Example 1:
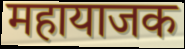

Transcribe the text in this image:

महायाजक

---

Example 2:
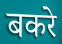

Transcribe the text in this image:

बकरे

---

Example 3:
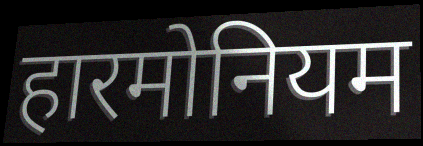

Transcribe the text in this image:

हारमोनियम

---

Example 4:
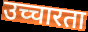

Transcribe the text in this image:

उच्चारता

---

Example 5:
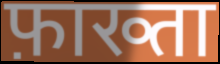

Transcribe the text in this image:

फ़ाख्ता